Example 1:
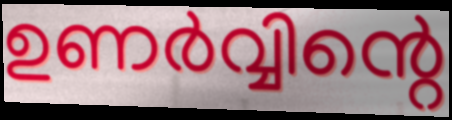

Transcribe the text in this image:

ഉണർവ്വിന്റെ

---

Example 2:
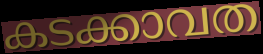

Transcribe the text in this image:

കടക്കാവത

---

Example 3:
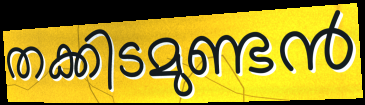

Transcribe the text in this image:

തക്കിടമുണ്ടൻ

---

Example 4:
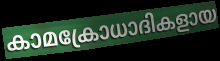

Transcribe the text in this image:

കാമക്രോധാദികളായ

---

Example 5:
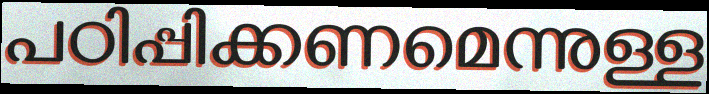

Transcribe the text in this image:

പഠിപ്പിക്കണമെന്നുള്ള